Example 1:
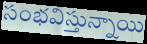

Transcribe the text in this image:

సంభవిస్తున్నాయి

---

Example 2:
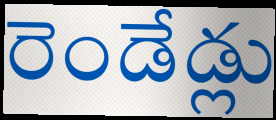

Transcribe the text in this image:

రెండేడ్లు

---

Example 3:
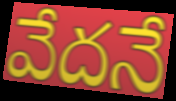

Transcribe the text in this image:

వేదనే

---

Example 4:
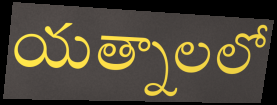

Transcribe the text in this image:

యత్నాలలో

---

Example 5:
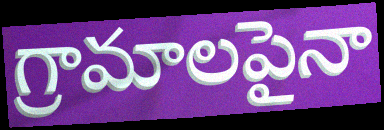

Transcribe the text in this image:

గ్రామాలపైనా